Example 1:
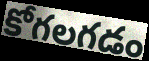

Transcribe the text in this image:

కోగలగడం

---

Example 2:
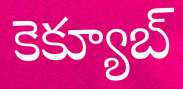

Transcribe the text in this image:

కెక్యూబ్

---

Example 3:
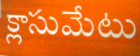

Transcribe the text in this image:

క్లాసుమేటు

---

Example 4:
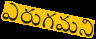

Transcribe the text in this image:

ఎరుగమని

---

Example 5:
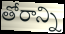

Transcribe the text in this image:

తోరాన్ని